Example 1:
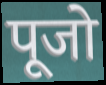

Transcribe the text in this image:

पूजो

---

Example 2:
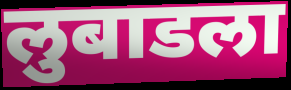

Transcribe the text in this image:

लुबाडला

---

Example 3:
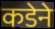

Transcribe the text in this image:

कडेने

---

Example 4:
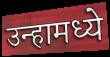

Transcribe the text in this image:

उन्हामध्ये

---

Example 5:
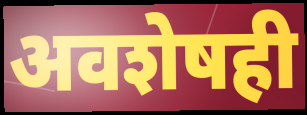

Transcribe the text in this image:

अवशेषही